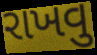
રાખવુ